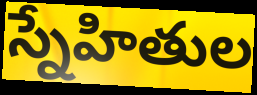
స్నేహితుల